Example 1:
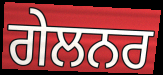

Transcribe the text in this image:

ਗੇਲਨਰ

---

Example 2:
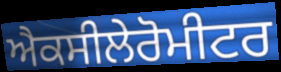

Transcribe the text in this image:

ਐਕਸੀਲੇਰੋਮੀਟਰ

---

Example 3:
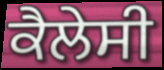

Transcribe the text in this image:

ਕੈਲੇਸੀ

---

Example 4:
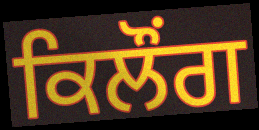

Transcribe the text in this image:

ਕਿਲੌਂਗ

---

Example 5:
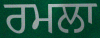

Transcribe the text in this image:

ਰਮਲਾ